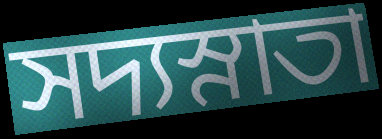
সদ্যস্নাতা